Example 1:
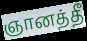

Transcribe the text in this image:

ஞானத்தீ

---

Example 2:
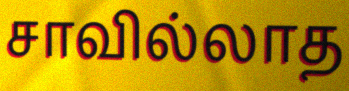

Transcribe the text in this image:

சாவில்லாத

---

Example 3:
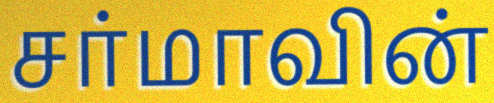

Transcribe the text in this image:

சர்மாவின்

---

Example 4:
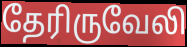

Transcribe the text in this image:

தேரிருவேலி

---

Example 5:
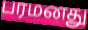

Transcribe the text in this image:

பரமனது